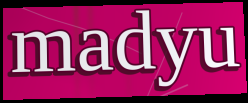
madyu